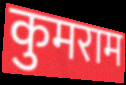
कुमराम